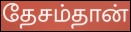
தேசம்தான்